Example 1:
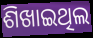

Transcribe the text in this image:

ଶିଖାଇଥିଲ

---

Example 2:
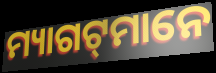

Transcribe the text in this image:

ମ୍ୟାଗଟ୍‌ମାନେ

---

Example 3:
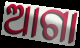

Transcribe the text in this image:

ଆଗା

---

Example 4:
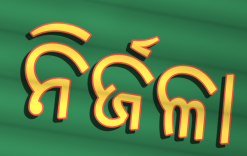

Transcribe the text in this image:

ନିର୍ଜଳା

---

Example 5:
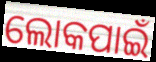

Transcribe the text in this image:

ଲୋକପାଇଁ